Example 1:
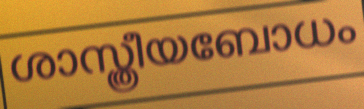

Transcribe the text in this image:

ശാസ്ത്രീയബോധം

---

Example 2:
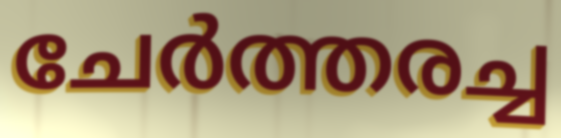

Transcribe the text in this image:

ചേർത്തരച്ച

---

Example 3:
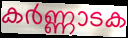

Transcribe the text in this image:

കർണ്ണാടക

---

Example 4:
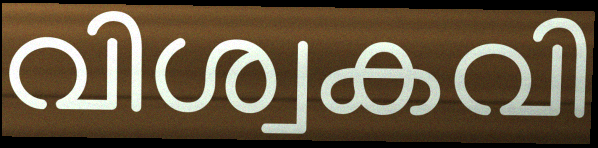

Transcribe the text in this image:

വിശ്വകവി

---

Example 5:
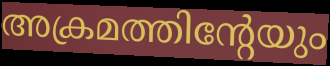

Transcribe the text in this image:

അക്രമത്തിന്റേയും